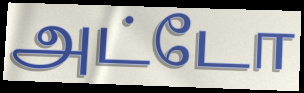
அட்டோ